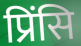
प्रिंसि